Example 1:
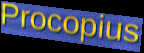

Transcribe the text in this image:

Procopius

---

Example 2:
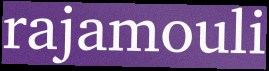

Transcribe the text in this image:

rajamouli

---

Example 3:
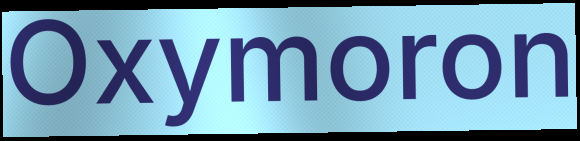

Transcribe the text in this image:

Oxymoron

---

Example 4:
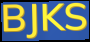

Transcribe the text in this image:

BJKS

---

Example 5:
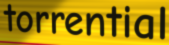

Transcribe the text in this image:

torrential